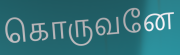
கொருவனே